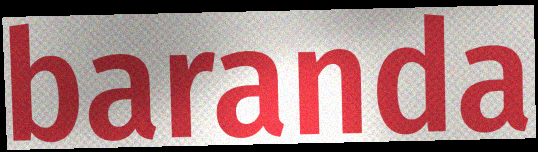
baranda